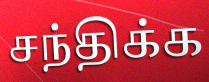
சந்திக்க